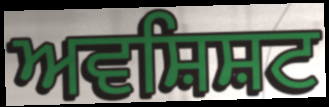
ਅਵਸ਼ਿਸ਼ਟ